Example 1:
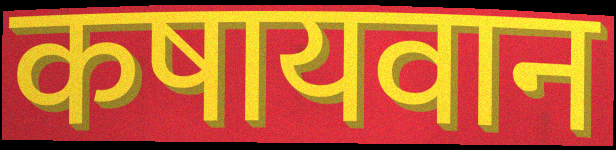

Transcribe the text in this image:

कषायवान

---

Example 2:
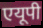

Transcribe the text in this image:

एयूपी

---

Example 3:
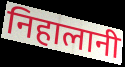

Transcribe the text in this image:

निहालानी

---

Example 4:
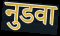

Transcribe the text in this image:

नुडवा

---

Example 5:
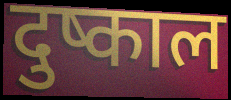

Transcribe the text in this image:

दुष्काल